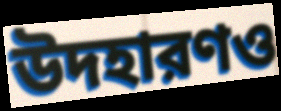
উদহারণও